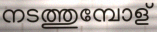
നടത്തുമ്പോള്